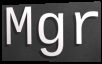
Mgr